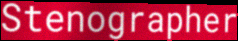
Stenographer